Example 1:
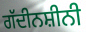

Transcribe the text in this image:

ਗੱਦੀਨਸ਼ੀਨੀ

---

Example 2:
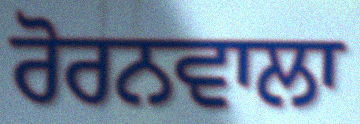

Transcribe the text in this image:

ਰੋਰਨਵਾਲਾ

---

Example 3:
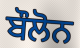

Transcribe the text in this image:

ਬੌਲੋਨ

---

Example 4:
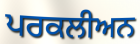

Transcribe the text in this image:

ਪਰਕਲੀਅਨ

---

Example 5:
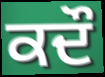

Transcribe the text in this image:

ਕਦੌ